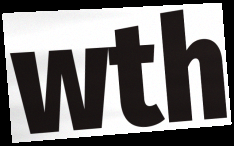
wth